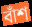
বাঁশ